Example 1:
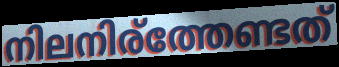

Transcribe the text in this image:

നിലനിര്ത്തേണ്ടത്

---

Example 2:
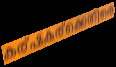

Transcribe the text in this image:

കര്ഷകര്ക്കെതിരെ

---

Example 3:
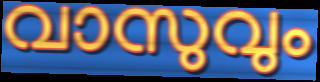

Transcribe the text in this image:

വാസുവും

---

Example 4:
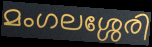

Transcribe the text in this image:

മംഗലശ്ശേരി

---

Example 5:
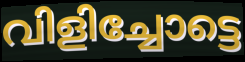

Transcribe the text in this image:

വിളിച്ചോട്ടെ